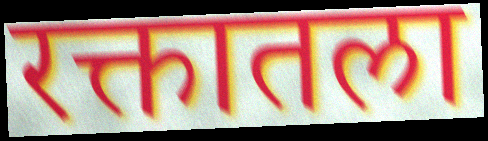
रक्तातला